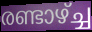
രണ്ടാഴ്ച്ച